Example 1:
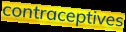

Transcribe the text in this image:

contraceptives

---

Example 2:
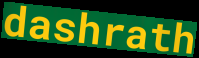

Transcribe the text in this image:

dashrath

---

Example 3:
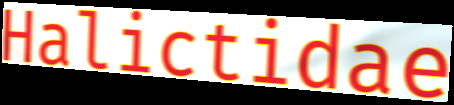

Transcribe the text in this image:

Halictidae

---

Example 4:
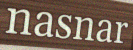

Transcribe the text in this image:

nasnar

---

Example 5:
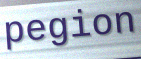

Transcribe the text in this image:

pegion